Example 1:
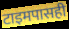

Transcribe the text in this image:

टाइमपासही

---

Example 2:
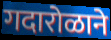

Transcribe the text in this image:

गदारोळाने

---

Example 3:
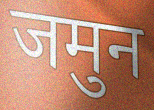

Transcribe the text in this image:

जमुन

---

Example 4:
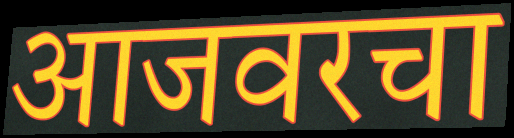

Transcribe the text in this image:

आजवरचा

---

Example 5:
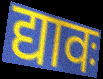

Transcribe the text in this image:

द्यावः